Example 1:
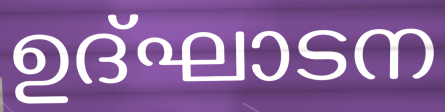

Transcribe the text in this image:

ഉദ്ഘാടന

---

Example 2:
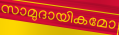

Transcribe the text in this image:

സാമുദായികമോ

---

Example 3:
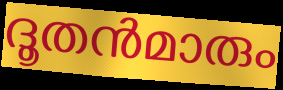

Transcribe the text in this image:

ദൂതൻമാരും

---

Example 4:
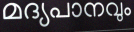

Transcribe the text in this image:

മദ്യപാനവും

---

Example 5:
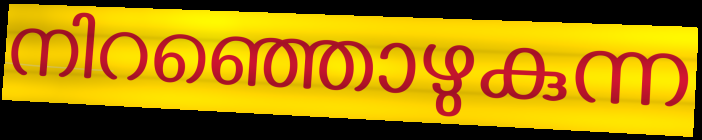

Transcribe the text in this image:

നിറഞ്ഞൊഴുകുന്ന